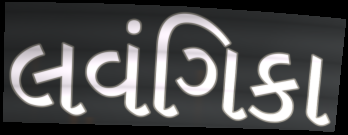
લવંગિકા